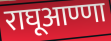
राघूआण्णा